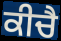
ਕੀਚੈ